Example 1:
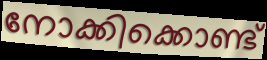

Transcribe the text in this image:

നോക്കിക്കൊണ്ട്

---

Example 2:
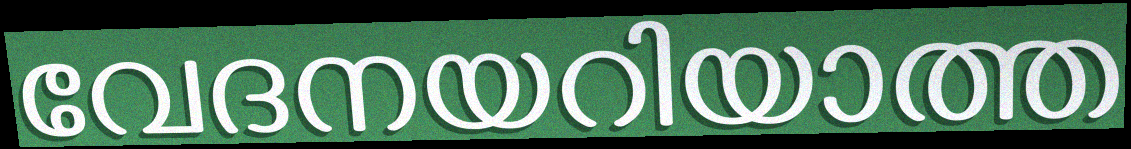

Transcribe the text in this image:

വേദനയറിയാത്ത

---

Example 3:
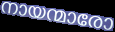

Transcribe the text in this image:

നായന്മാരോ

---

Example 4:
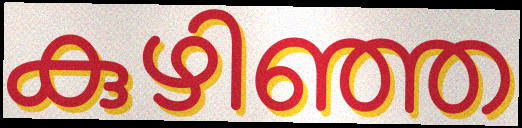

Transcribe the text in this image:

കുഴിഞ്ഞ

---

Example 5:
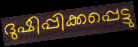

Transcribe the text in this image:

ദുഷിപ്പിക്കപ്പെട്ടു